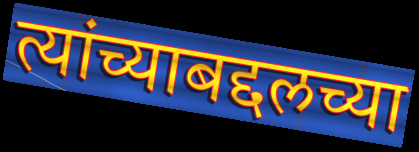
त्यांच्याबद्दलच्या